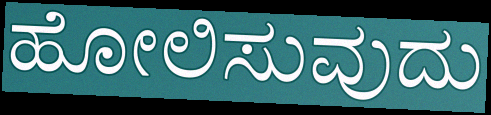
ಹೋಲಿಸುವುದು